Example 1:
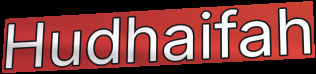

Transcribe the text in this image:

Hudhaifah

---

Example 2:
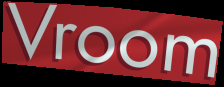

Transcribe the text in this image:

Vroom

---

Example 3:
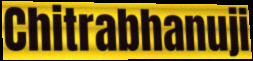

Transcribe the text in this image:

Chitrabhanuji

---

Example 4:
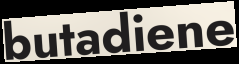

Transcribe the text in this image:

butadiene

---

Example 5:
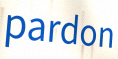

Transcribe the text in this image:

pardon